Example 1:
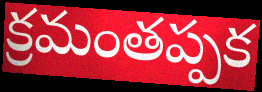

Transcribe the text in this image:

క్రమంతప్పక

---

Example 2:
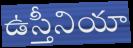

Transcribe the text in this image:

ఉస్తీనియా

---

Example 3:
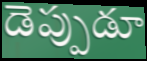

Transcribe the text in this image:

డెప్పుడూ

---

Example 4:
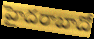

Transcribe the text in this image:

హైదరాబాదో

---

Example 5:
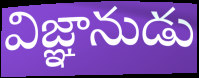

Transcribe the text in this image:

విజ్ఞానుడు